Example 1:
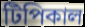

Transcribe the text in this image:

টিপিকাল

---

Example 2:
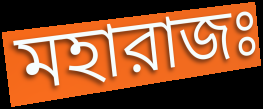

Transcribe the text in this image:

মহারাজঃ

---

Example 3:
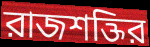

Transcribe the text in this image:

রাজশক্তির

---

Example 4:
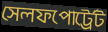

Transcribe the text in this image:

সেলফপোর্ট্রেট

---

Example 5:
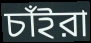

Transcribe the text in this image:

চাঁইরা